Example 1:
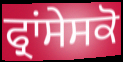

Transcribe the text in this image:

ਫ੍ਰਾਂਸੇਸਕੋ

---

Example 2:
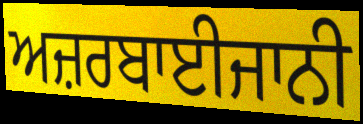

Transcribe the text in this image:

ਅਜ਼ਰਬਾਈਜਾਨੀ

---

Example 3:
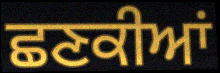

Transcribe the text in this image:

ਛਣਕੀਆਂ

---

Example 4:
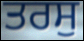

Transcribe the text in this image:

ਤਰਸੁ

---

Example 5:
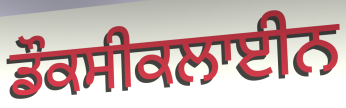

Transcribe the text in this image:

ਡੌਕਸੀਕਲਾਈਨ